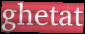
ghetat